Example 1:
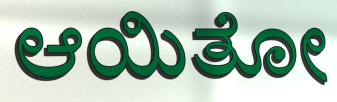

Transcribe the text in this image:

ಆಯಿತೋ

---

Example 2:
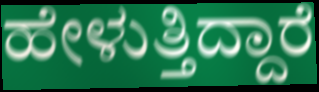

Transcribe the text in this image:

ಹೇಳುತ್ತಿದ್ದಾರೆ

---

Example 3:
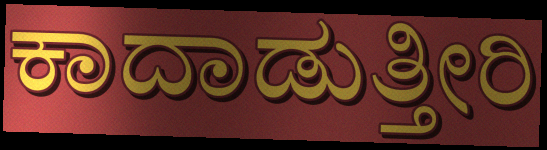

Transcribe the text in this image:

ಕಾದಾಡುತ್ತೀರಿ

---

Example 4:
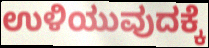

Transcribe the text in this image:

ಉಳಿಯುವುದಕ್ಕೆ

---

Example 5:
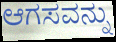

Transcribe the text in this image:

ಆಗಸವನ್ನು